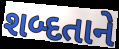
શબ્દતાને